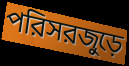
পরিসরজুড়ে